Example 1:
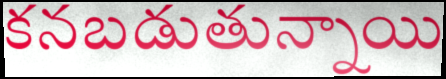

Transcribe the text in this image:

కనబడుతున్నాయి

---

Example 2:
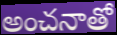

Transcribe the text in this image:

అంచనాతో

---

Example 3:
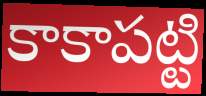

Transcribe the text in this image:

కాకాపట్టి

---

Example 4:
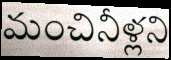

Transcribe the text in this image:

మంచినీళ్లని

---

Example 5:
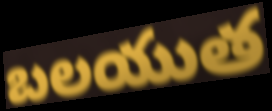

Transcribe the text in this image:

బలయుత